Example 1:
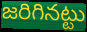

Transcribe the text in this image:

జరిగినట్టు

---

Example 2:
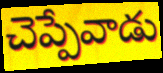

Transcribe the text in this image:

చెప్పేవాడు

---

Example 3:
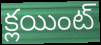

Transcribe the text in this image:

క్లయింట్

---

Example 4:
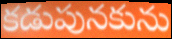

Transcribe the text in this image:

కడుపునకును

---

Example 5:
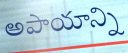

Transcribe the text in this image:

అపాయాన్ని